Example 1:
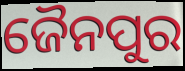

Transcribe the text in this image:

ଜୈନପୁର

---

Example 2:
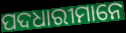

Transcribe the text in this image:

ପଦଧାରୀମାନେ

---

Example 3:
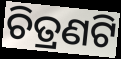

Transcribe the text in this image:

ଚିତ୍ରଣଟି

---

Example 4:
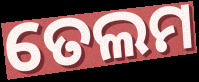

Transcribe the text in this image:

ତେଲମ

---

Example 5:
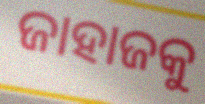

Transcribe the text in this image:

ଜାହାଜକୁ